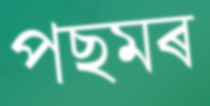
পছমৰ